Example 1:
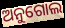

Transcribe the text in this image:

ଅନୁଗୋଲ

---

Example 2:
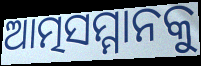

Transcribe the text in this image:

ଆତ୍ମସମ୍ମାନକୁ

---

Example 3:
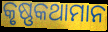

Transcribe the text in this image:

କୃଷ୍ଣକଥାମାନ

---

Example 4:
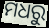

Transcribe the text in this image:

ମଧରୁ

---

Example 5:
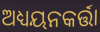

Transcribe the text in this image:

ଅଧ୍ୟୟନକର୍ତ୍ତା